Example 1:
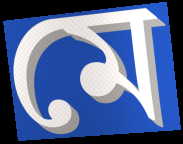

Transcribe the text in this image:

মে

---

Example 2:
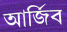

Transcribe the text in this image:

আৰ্জিব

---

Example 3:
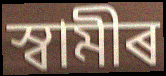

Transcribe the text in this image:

স্বামীৰ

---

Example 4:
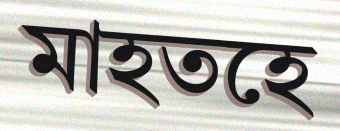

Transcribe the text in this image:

মাহতহে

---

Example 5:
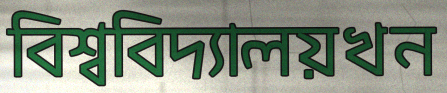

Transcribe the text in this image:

বিশ্ববিদ্যালয়খন